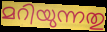
മറിയുന്നതു